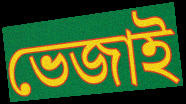
ভেজাই